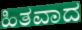
ಹಿತವಾದ